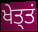
ਖੇਤ੍ਤਂ